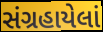
સંગ્રહાયેલાં